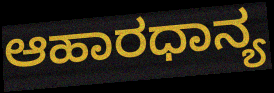
ಆಹಾರಧಾನ್ಯ